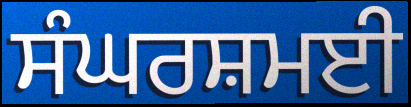
ਸੰਘਰਸ਼ਮਈ